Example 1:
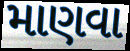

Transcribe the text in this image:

માણવા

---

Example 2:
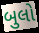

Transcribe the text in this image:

બુલો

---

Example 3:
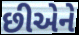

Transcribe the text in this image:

છીએને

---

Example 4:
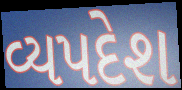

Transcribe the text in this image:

વ્યપદેશ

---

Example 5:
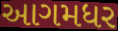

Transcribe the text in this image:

આગમધર